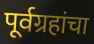
पूर्वग्रहांचा